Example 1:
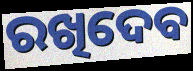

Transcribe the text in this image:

ରଖିଦେବ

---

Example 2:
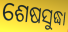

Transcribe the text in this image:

ଶେଷସୁଦ୍ଧା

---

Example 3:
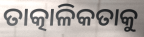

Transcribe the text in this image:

ତାତ୍କାଳିକତାକୁ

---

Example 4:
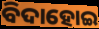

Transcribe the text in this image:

ବିଦାହୋଇ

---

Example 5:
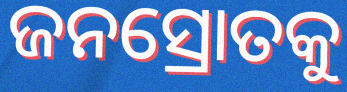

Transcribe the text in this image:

ଜନସ୍ରୋତକୁ